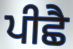
ਪੀਛੈ